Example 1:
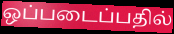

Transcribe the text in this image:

ஒப்படைப்பதில்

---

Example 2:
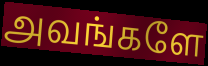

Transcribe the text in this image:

அவங்களே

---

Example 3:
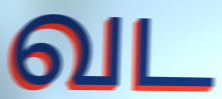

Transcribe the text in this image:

வட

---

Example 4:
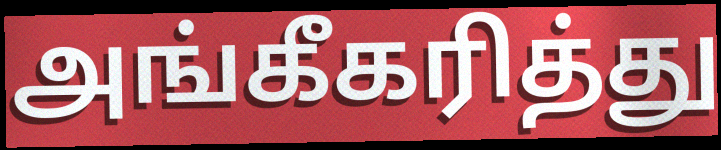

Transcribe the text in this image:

அங்கீகரித்து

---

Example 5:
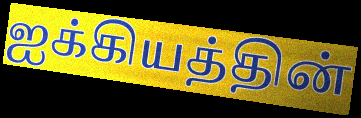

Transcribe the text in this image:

ஐக்கியத்தின்